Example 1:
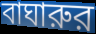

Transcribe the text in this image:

বাঘারুর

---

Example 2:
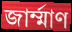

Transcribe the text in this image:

জার্ম্মাণ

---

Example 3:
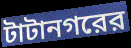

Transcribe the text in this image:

টাটানগরের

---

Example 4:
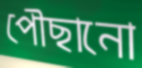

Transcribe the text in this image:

পৌছানো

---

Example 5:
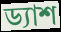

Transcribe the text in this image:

ড্যাশ